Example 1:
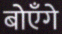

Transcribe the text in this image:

बोएँगे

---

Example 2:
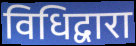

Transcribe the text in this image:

विधिद्वारा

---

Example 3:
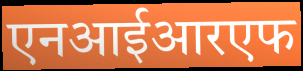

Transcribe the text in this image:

एनआईआरएफ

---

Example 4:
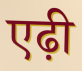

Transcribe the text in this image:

एढ़ी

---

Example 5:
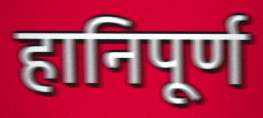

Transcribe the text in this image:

हानिपूर्ण